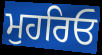
ਮੁਹਰਿਓ